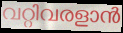
വറ്റിവരളാൻ